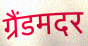
ग्रैंडमदर